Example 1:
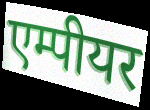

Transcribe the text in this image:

एम्पीयर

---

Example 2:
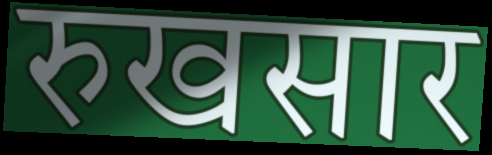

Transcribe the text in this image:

रुखसार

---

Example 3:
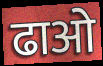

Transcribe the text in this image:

ढाओ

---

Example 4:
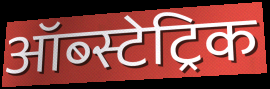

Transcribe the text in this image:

ऑब्स्टेट्रिक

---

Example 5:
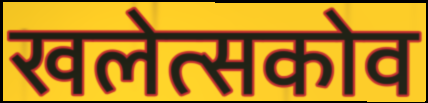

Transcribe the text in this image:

खलेत्सकोव